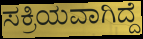
ಸಕ್ರಿಯವಾಗಿದ್ದೆ